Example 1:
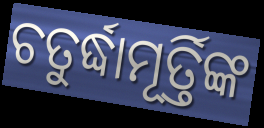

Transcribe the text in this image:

ଚତୁର୍ଦ୍ଧାମୂର୍ତ୍ତିଙ୍କ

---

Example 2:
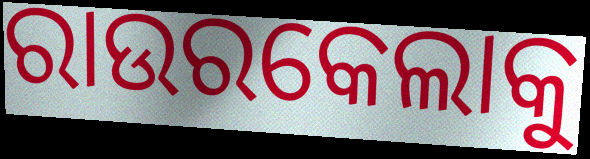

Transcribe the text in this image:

ରାଉରକେଲାକୁ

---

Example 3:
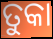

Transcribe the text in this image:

ତୁକା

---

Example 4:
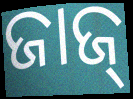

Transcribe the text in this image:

ଜାଜ୍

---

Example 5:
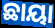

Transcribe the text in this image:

ଛାୟା